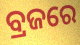
ବ୍ରଜରେ